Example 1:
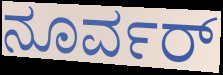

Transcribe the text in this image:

ನೂರ್ವರ್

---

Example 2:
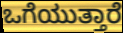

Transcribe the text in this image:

ಒಗೆಯುತ್ತಾರೆ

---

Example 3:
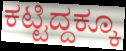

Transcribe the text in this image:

ಕಟ್ಟಿದ್ದಕ್ಕೂ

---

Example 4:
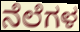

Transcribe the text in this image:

ನೆಲೆಗಳ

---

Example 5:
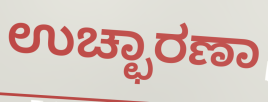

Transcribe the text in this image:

ಉಚ್ಛಾರಣಾ